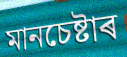
মানচেষ্টাৰ